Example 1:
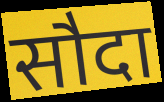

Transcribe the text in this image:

सौदा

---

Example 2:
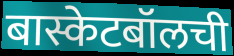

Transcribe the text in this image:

बास्केटबॉलची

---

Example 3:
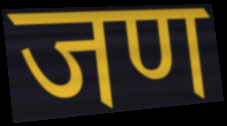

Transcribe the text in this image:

जण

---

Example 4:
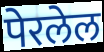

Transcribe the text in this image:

पेरलेल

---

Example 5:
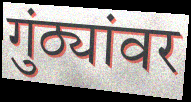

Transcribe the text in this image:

गुंठ्यांवर